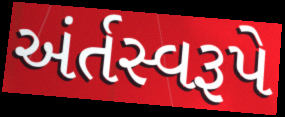
અંર્તસ્વરૂપે